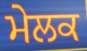
ਮੇਲਕ